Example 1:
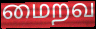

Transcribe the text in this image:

மைறவ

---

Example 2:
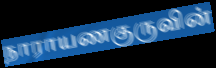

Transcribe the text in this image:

நாராயணகுருவின்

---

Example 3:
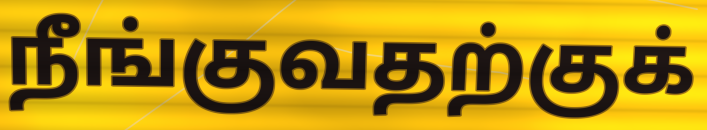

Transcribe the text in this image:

நீங்குவதற்குக்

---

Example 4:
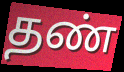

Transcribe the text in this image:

தண்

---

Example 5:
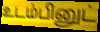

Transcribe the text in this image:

உடம்பினுட்